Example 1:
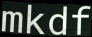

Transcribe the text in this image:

mkdf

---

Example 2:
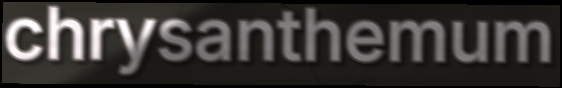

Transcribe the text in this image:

chrysanthemum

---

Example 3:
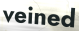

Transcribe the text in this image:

veined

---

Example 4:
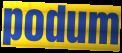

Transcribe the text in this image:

podum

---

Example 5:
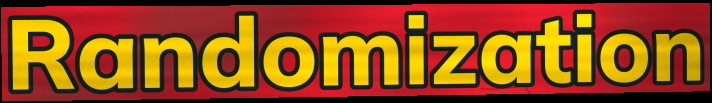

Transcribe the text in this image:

Randomization